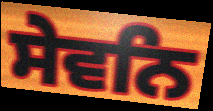
ਸੇਵਨਿ